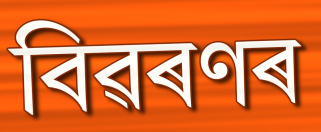
বিৱৰণৰ